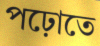
পঢ়োতে